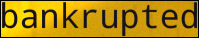
bankrupted